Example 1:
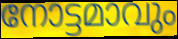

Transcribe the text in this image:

നോട്ടമാവും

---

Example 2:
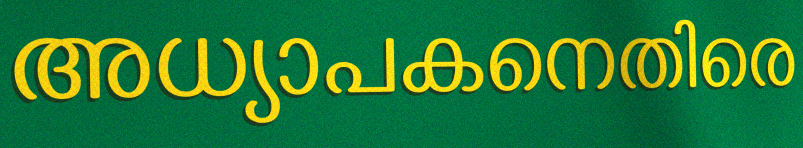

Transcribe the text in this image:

അധ്യാപകനെതിരെ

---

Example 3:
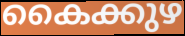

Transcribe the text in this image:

കൈക്കുഴ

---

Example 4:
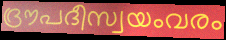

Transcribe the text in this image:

ദ്രൗപദീസ്വയംവരം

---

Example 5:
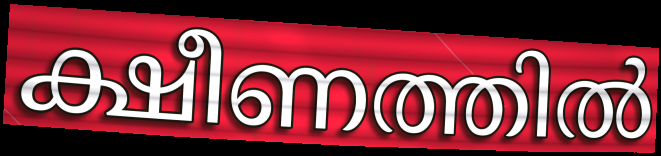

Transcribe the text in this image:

ക്ഷീണത്തിൽ